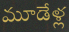
మూడేళ్ల